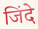
जिंदे